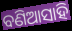
ବଣିଆସାହି